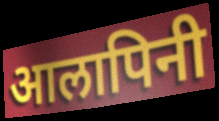
आलापिनी